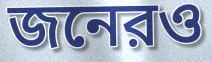
জনেরও